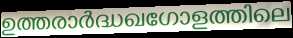
ഉത്തരാർദ്ധഖഗോളത്തിലെ